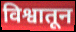
विश्वातून